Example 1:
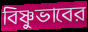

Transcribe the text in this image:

বিষ্ণুভাবের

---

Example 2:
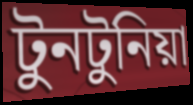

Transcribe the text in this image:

টুনটুনিয়া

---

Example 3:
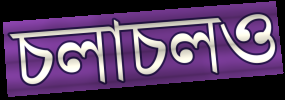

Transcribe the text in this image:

চলাচলও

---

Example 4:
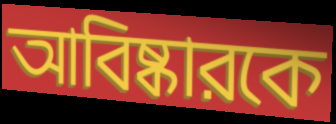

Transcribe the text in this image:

আবিষ্কারকে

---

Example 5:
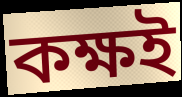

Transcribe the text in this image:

কক্ষই